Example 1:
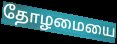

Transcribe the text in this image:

தோழமையை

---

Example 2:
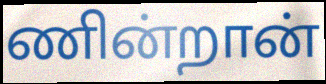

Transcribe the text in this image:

ணின்றான்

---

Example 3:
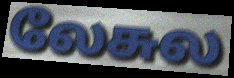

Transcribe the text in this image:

லேசுல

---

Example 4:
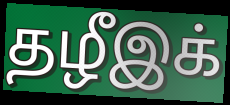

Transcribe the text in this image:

தழீஇக்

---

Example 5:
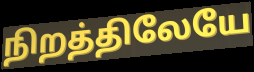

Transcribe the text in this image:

நிறத்திலேயே